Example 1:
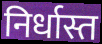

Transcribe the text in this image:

निर्धास्त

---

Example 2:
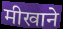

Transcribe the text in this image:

मीखाने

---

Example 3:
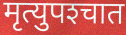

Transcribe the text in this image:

मृत्युपश्‍चात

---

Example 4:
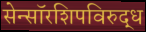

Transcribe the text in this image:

सेन्सॉरशिपविरुद्ध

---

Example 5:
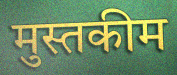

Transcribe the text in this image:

मुस्तकीम